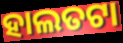
ହାଲତଟା